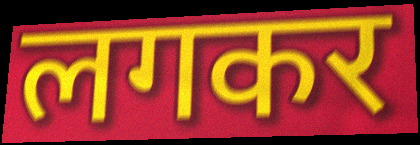
लगकर